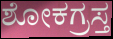
ಶೋಕಗ್ರಸ್ತ